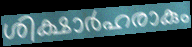
ശിക്ഷാർഹരാകും